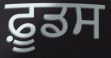
ਫ਼ੂਡਸ